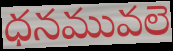
ధనమువలె